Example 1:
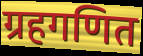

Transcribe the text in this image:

ग्रहगणित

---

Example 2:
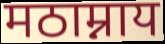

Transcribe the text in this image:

मठाम्नाय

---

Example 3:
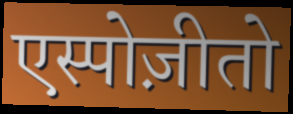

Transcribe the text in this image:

एस्पोज़ीतो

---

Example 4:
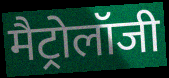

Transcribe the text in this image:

मैट्रोलॉजी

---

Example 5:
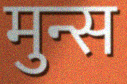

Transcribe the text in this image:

मुन्स